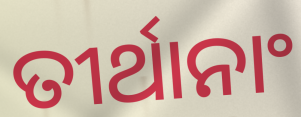
ତୀର୍ଥାନାଂ